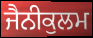
ਜੈਨੀਕੁਲਮ